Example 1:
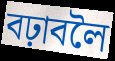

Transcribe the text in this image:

বঢ়াবলৈ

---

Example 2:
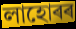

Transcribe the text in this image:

লাহোৰৰ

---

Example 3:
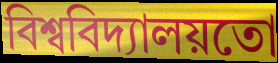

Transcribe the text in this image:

বিশ্ববিদ্য়ালয়তো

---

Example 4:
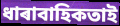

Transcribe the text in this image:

ধাৰাবাহিকতাই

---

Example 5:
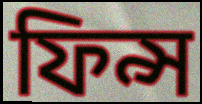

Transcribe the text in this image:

ফিন্স